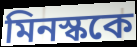
মিনস্ককে